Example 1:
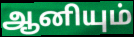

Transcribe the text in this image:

ஆனியும்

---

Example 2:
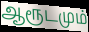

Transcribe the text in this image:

ஆரூடமும்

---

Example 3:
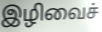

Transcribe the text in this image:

இழிவைச்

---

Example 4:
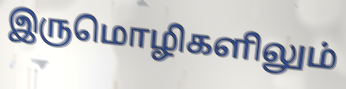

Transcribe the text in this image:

இருமொழிகளிலும்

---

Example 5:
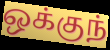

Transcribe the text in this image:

ஒக்குந்